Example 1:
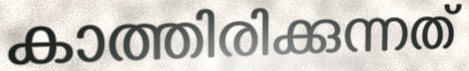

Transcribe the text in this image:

കാത്തിരിക്കുന്നത്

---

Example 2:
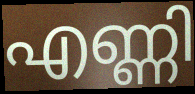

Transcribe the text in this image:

എണ്ണി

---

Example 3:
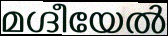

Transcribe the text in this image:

മഗ്ദീയേൽ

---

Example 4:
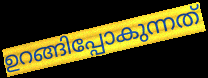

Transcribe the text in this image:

ഉറങ്ങിപ്പോകുന്നത്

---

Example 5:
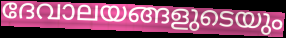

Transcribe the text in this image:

ദേവാലയങ്ങളുടെയും